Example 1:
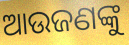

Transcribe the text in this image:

ଆଉଜଣଙ୍କୁ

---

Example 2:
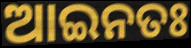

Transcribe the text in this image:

ଆଇନତଃ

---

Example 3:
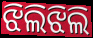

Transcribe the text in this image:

ଝିଲିଝିଲି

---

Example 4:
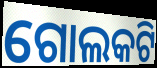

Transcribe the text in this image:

ଗୋଲକଟି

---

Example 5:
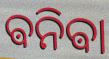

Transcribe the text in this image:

ଵନିଵା